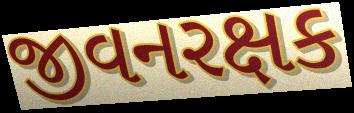
જીવનરક્ષક